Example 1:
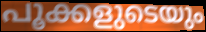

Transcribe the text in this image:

പൂക്കളുടെയും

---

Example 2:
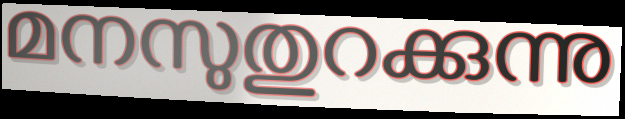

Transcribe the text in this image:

മനസുതുറക്കുന്നു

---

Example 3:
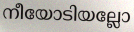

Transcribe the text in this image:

നീയോടിയല്ലോ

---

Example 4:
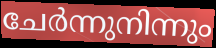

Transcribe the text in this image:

ചേർന്നുനിന്നും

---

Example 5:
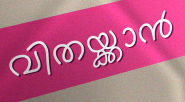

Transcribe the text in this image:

വിതയ്ക്കാൻ